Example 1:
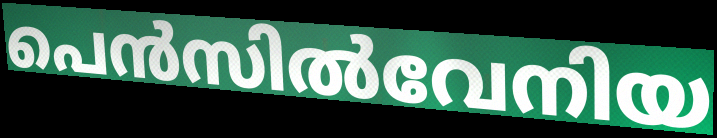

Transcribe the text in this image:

പെൻസിൽവേനിയ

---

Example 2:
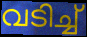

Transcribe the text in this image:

വടിച്ച്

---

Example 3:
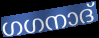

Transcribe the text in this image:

ഗഗനാദ്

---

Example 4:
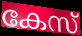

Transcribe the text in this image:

കേസ്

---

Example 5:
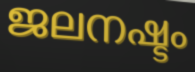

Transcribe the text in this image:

ജലനഷ്ടം